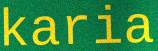
karia